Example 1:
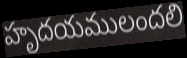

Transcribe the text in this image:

హృదయములందలి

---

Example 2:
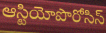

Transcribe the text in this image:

ఆస్టియోపొరోసిస్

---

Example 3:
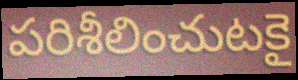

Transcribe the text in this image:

పరిశీలించుటకై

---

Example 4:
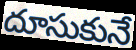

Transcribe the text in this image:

దూసుకునే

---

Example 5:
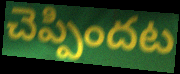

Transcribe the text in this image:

చెప్పిందట